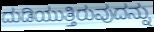
ದುಡಿಯುತ್ತಿರುವುದನ್ನು